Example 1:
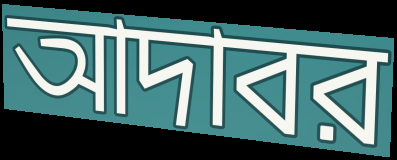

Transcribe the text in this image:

আদাবর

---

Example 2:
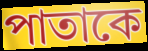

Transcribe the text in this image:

পাতাকে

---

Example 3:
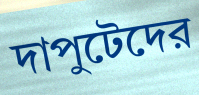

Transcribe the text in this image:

দাপুটেদের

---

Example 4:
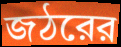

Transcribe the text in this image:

জঠরের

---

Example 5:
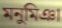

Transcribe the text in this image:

মনুমিঞা